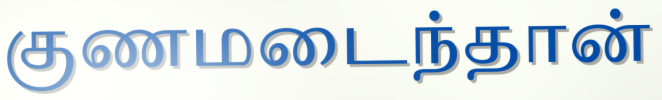
குணமடைந்தான்